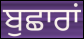
ਬੁਛਾਰਾਂ